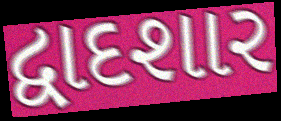
દ્વાદશાર